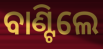
ବାଣ୍ଟିଲେ